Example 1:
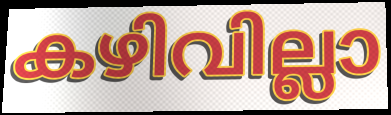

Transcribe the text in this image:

കഴിവില്ലാ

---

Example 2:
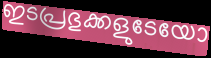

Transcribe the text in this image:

ഇടപ്രഭുക്കളുടേയോ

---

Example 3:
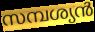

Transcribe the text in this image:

സമ്പശ്യൻ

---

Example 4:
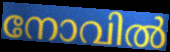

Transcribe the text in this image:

നോവിൽ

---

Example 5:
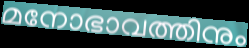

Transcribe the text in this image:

മനോഭാവത്തിനും